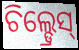
ଚିଲ୍ଡ୍ରେସ୍